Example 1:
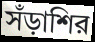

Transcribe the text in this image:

সঁড়াশির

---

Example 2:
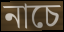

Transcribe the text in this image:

নাচে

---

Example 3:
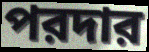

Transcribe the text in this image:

পরদার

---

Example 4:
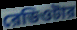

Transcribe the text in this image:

রেডিওটার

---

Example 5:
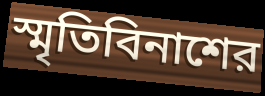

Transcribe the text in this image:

স্মৃতিবিনাশের